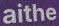
aithe